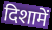
दिशामें